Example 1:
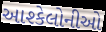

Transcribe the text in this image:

આશ્કેલોનીઓ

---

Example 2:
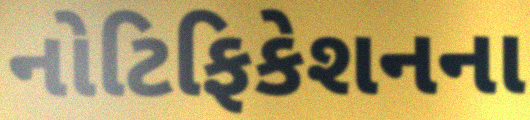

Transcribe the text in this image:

નોટિફિકેશનના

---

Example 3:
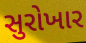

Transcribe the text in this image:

સુરોખાર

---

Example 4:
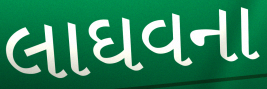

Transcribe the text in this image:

લાઘવના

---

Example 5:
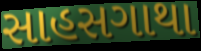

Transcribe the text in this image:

સાહસગાથા